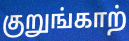
குறுங்காற்